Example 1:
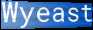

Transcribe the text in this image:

Wyeast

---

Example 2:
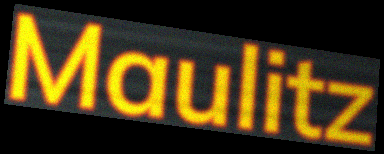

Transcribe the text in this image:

Maulitz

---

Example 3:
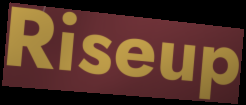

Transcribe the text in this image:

Riseup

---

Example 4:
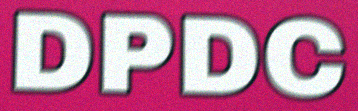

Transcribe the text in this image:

DPDC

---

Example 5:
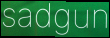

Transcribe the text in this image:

sadgun